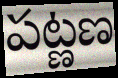
పట్ణణ